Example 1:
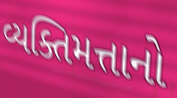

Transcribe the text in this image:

વ્યક્તિમત્તાનો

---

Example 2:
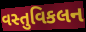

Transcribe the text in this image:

વસ્તુવિકલન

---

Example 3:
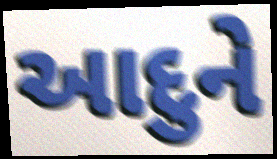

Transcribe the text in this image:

આદુને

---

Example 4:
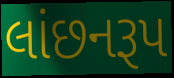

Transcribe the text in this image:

લાંછનરૂપ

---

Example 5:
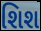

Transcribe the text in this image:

શિશ